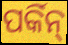
ପର୍କିନ୍